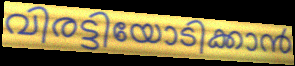
വിരട്ടിയോടിക്കാൻ